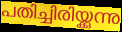
പതിച്ചിരിയ്ക്കുന്നു